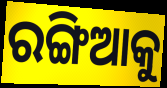
ରଙ୍ଗିଆକୁ